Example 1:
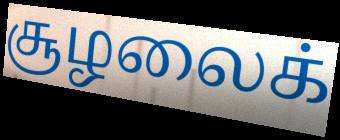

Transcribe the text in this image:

சூழலைக்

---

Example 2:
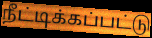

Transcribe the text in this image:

நீட்டிக்கப்பட்டு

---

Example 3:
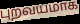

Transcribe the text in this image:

புறவயமாக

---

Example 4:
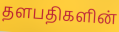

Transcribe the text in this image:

தளபதிகளின்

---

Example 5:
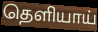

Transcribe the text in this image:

தெளியாய்